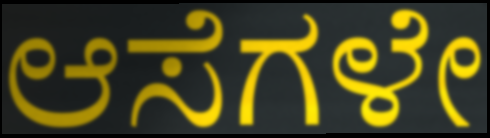
ಆಸೆಗಳೇ